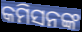
କମିସନଙ୍କ